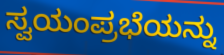
ಸ್ವಯಂಪ್ರಭೆಯನ್ನು